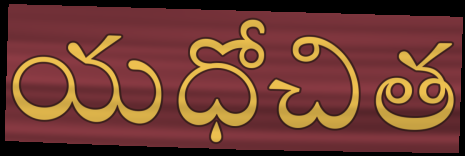
యధోచిత